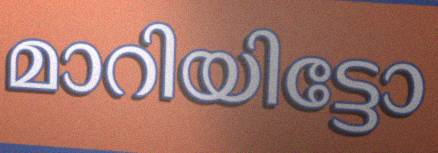
മാറിയിട്ടോ